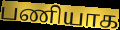
பணியாக